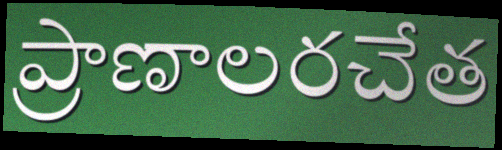
ప్రాణాలరచేత